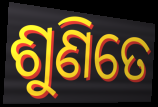
ଶୁଣିତେ